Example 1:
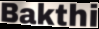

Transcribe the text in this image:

Bakthi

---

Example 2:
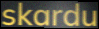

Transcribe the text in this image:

skardu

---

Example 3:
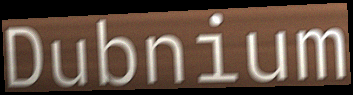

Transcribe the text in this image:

Dubnium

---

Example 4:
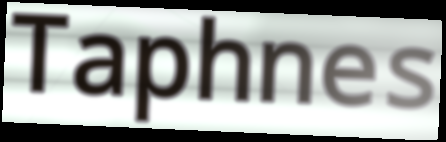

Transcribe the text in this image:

Taphnes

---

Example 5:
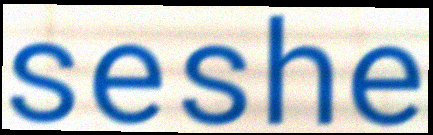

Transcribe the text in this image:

seshe